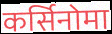
कर्सिनोमा